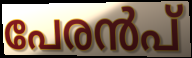
പേരൻപ്